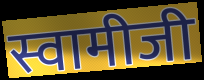
स्वामीजी